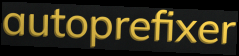
autoprefixer